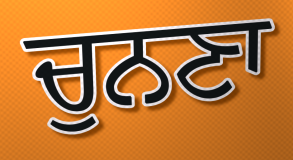
ਚੁਨਣਾ